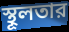
স্থূলতার